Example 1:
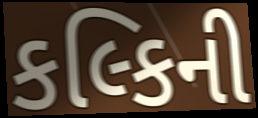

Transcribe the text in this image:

કલ્કિની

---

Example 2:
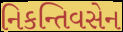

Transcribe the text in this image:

નિકન્તિવસેન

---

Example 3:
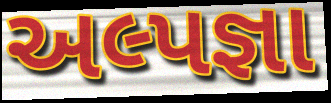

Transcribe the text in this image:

અલ્પજ્ઞા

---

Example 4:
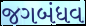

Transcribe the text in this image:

જગબંધવ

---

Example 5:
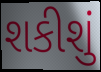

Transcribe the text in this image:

શકીશું